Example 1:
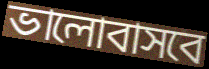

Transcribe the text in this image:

ভালোবাসবে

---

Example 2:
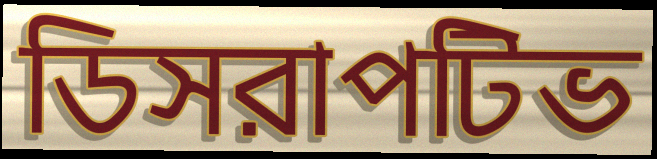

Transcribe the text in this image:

ডিসরাপটিভ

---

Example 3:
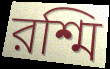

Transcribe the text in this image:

রশ্মি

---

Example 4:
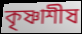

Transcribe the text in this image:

কৃষ্ণাশীষ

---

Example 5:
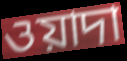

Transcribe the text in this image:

ওয়াদা